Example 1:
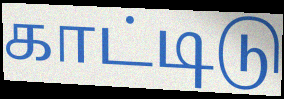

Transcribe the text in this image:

காட்டிடு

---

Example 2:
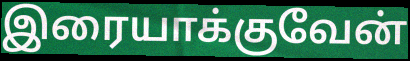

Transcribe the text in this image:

இரையாக்குவேன்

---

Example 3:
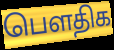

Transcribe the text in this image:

பௌதிக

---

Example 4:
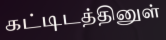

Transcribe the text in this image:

கட்டிடத்தினுள்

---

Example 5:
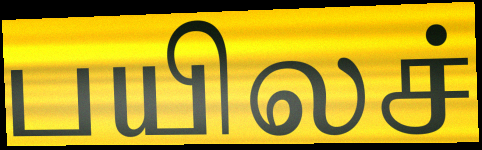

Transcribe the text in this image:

பயிலச்